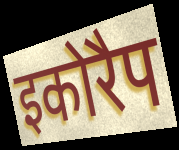
इकोरैप